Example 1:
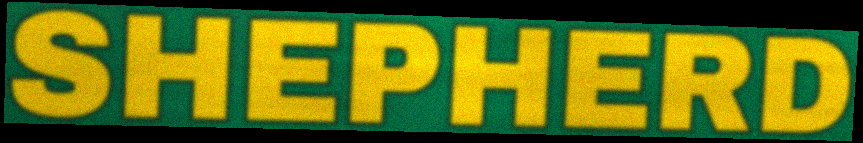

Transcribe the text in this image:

SHEPHERD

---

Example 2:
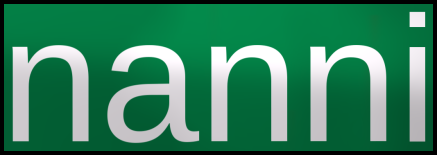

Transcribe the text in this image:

nanni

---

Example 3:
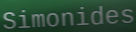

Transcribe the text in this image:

Simonides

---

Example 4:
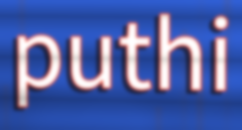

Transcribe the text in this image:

puthi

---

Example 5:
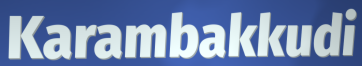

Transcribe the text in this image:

Karambakkudi